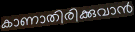
കാണാതിരിക്കുവാൻ